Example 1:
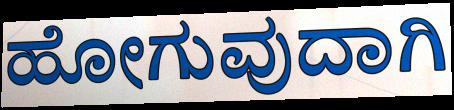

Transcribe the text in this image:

ಹೋಗುವುದಾಗಿ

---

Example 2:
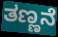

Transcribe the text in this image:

ತಣ್ಣನೆ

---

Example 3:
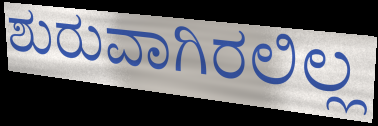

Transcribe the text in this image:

ಶುರುವಾಗಿರಲಿಲ್ಲ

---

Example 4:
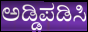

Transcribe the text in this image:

ಅಡ್ಡಿಪಡಿಸಿ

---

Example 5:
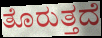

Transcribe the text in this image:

ತೊರುತ್ತದೆ